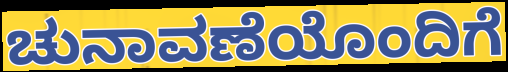
ಚುನಾವಣೆಯೊಂದಿಗೆ